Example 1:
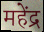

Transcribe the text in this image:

महेंद्र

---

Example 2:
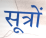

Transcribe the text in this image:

सूत्रों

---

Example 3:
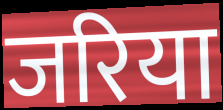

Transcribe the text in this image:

जरिया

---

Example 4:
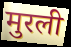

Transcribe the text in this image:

मुरली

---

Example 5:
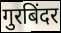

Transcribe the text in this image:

गुरबिंदर